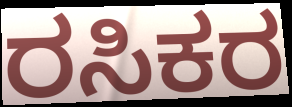
ರಸಿಕರ